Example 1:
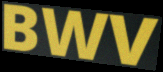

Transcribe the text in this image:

BWV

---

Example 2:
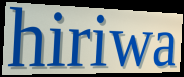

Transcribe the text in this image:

hiriwa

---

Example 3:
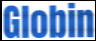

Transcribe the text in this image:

Globin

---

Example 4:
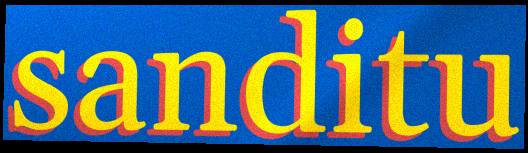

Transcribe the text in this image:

sanditu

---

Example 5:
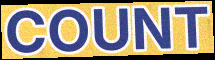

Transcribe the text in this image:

COUNT